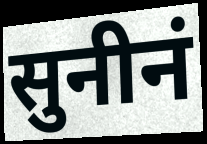
सुनीनं